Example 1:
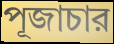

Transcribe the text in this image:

পূজাচার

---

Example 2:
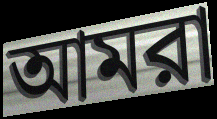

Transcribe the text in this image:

আমরা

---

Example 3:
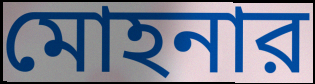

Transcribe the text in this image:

মোহনার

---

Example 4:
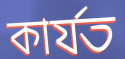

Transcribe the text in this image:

কার্যত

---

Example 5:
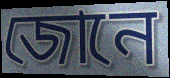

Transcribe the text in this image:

জোনে